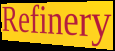
Refinery